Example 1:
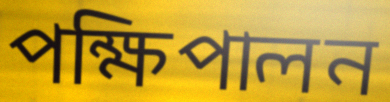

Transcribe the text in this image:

পক্ষিপালন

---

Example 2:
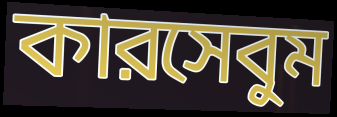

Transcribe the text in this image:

কারসেবুম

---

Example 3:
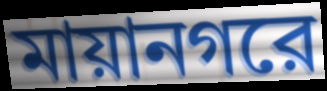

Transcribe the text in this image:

মায়ানগরে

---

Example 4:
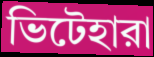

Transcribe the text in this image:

ভিটেহারা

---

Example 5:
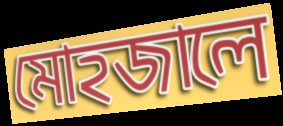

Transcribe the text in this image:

মোহজালে